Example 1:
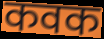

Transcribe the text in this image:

कवक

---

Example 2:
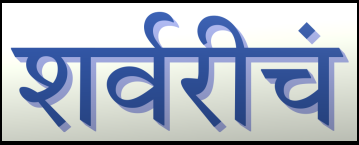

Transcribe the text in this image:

शर्वरीचं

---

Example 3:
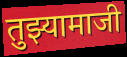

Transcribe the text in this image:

तुझ्यामाजी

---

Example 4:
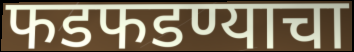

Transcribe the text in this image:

फडफडण्याचा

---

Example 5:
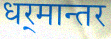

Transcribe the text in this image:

धर्मान्तर